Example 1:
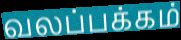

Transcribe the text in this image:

வலப்பக்கம்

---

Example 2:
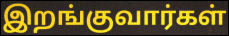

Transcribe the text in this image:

இறங்குவார்கள்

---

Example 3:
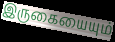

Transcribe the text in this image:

இருகையையும்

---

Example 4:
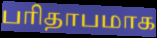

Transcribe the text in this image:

பரிதாபமாக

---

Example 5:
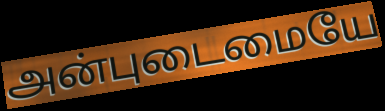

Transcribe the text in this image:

அன்புடைமையே